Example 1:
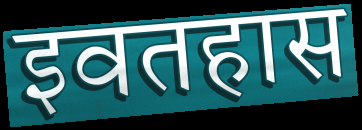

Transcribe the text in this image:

इवतहास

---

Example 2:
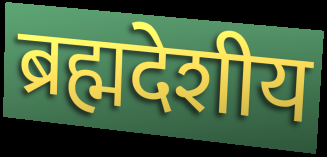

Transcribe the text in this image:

ब्रह्मदेशीय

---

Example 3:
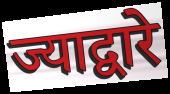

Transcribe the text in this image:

ज्याद्वारे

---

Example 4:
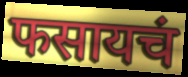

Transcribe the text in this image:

फसायचं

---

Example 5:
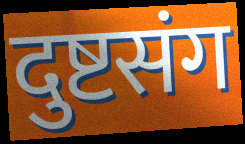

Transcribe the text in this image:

दुष्टसंग